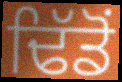
ਢਿੱਡੋਂ